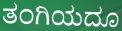
ತಂಗಿಯದೂ